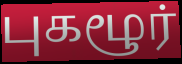
புகழூர்